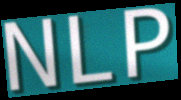
NLP